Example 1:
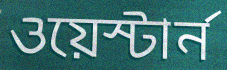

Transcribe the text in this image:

ওয়েস্টার্ন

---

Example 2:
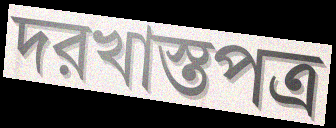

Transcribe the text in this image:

দরখাস্তপত্র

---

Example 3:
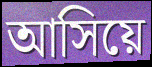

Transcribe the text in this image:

আসিয়ে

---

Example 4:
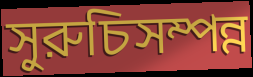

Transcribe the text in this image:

সুরুচিসম্পন্ন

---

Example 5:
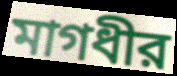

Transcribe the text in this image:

মাগধীর